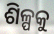
ଶିଳ୍ପକୁ